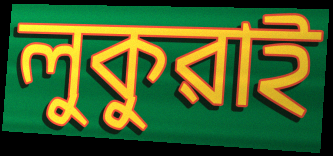
লুকুৱাই